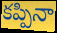
కప్పినా